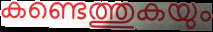
കണ്ടെത്തുകയും